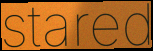
stared